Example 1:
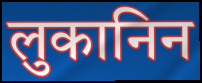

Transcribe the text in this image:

लुकानिन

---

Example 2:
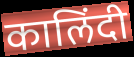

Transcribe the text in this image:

कालिंदी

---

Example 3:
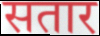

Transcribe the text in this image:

सतार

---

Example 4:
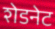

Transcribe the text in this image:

शेडनेट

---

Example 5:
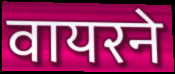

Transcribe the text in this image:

वायरने